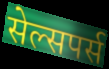
सेल्सपर्स